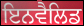
ਇਨਵੈਲਿਡ